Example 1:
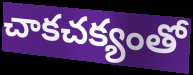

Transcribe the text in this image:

చాకచక్యంతో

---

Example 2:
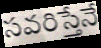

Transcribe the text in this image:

సవరిస్తేనే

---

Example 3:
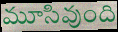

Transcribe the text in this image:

మూసివుంది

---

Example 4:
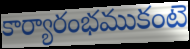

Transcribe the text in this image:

కార్యారంభముకంటె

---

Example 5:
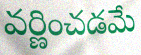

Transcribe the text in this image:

వర్ణించడమే